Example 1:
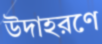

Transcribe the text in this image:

উদাহরণে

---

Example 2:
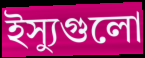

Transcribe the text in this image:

ইস্যুগুলো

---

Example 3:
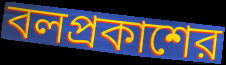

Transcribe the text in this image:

বলপ্রকাশের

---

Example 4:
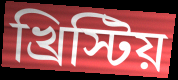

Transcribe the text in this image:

খ্রিস্টিয়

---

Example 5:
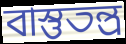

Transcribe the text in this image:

বাস্তুতন্ত্র